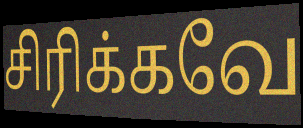
சிரிக்கவே